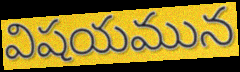
విషయమున